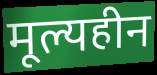
मूल्यहीन